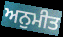
ਅਨੁਮੀਤ